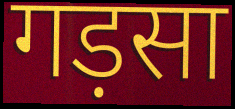
गड़सा